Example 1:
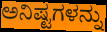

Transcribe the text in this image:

ಅನಿಷ್ಟಗಳನ್ನು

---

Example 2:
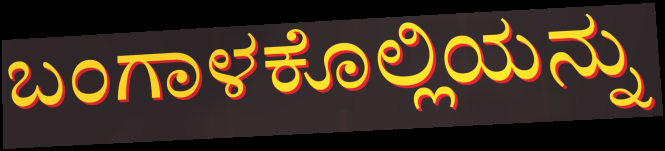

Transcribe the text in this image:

ಬಂಗಾಳಕೊಲ್ಲಿಯನ್ನು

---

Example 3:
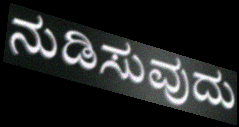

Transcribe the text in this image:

ನುಡಿಸುವುದು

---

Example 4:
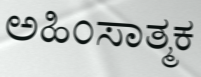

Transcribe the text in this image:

ಅಹಿಂಸಾತ್ಮಕ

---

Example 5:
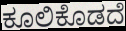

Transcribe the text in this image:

ಕೂಲಿಕೊಡದೆ